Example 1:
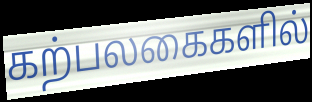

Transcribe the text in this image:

கற்பலகைகளில்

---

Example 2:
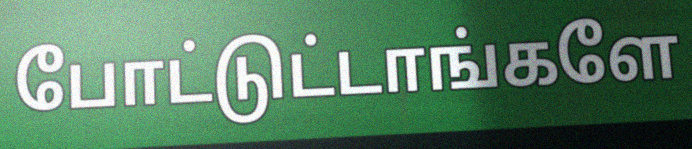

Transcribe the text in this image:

போட்டுட்டாங்களே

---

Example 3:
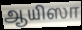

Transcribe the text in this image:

ஆயிஸா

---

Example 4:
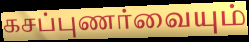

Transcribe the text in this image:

கசப்புணர்வையும்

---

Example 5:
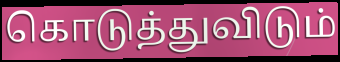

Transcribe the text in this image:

கொடுத்துவிடும்